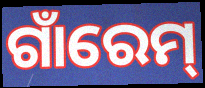
ଗାଁରେମ୍